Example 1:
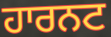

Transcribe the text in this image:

ਹਾਰਨਟ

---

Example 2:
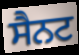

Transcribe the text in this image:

ਸੈਨਟ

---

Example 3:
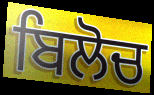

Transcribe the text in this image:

ਬਿਲੋਚ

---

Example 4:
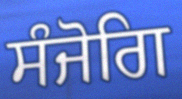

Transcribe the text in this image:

ਸੰਜੋਗਿ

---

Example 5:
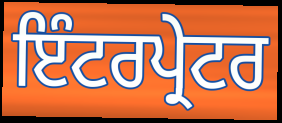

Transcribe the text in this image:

ਇੰਟਰਪ੍ਰੇਟਰ